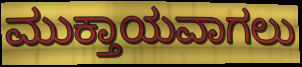
ಮುಕ್ತಾಯವಾಗಲು